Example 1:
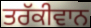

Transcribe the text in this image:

ਤਰੱਕੀਵਾਨ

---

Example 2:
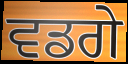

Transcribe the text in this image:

ਵਡਗੇ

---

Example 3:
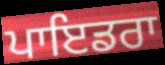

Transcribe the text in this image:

ਪਾਇਡਰਾ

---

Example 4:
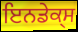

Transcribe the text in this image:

ਇਨਡੇਕ੍ਸ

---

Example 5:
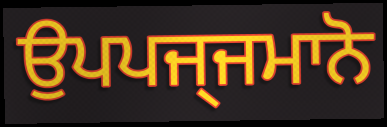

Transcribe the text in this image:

ਉਪਪਜ੍ਜਮਾਨੋ